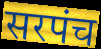
सरपंच